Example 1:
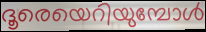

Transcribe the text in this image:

ദൂരെയെറിയുമ്പോൾ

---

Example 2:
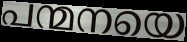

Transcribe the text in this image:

പന്മനയെ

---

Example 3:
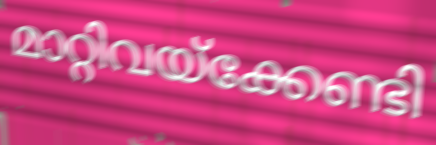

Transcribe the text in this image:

മാറ്റിവയ്ക്കേണ്ടി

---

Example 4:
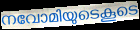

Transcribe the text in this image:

നവോമിയുടെകൂടെ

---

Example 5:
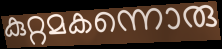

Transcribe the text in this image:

കുറ്റമകന്നൊരു